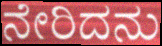
ನೇರಿದನು